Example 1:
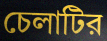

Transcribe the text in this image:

চেলাটির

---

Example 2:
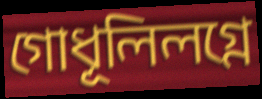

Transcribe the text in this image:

গোধূলিলগ্নে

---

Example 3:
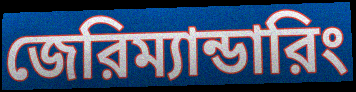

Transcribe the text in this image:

জেরিম্যান্ডারিং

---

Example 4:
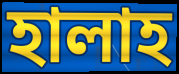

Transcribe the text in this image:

হালাহ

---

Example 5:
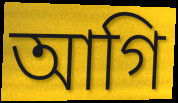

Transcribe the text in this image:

আগি